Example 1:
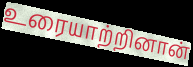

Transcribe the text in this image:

உரையாற்றினான்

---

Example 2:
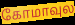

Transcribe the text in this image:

கோமாவுல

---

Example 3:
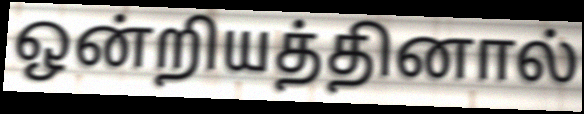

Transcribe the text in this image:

ஒன்றியத்தினால்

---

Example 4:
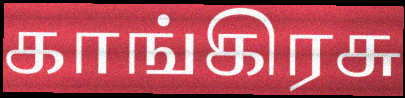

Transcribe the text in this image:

காங்கிரசு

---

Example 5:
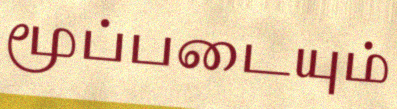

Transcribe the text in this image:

மூப்படையும்